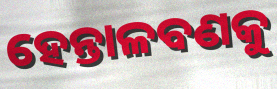
ହେନ୍ତାଳବଣକୁ